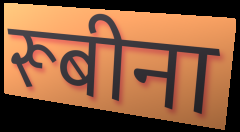
रूबीना